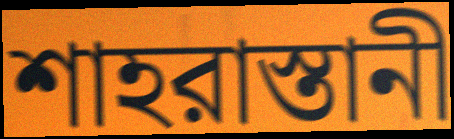
শাহরাস্তানী